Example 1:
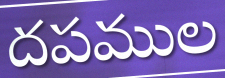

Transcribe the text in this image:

దపముల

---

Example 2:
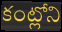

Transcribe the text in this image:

కంట్లోని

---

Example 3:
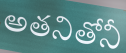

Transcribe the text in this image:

అతనితోనీ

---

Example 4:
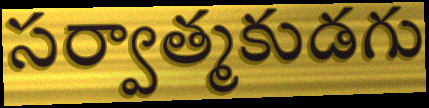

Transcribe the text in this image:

సర్వాత్మకుడగు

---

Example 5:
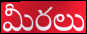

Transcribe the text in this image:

మీరలు